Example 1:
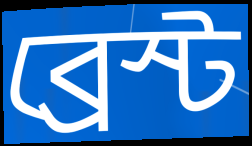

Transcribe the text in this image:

ব্রেস্ট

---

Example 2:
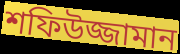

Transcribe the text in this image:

শফিউজ্জামান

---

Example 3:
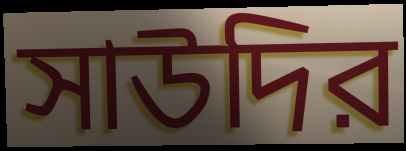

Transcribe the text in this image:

সাউদির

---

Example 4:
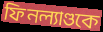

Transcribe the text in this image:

ফিনল্যাণ্ডকে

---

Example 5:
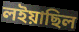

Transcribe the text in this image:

লইয়াছিল